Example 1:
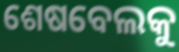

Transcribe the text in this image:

ଶେଷବେଲକୁ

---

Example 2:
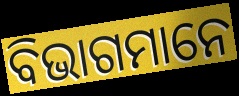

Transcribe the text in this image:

ବିଭାଗମାନେ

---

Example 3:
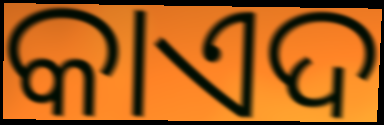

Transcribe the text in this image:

କାଏଦ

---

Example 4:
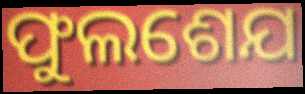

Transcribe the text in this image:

ଫୁଲଶେଯ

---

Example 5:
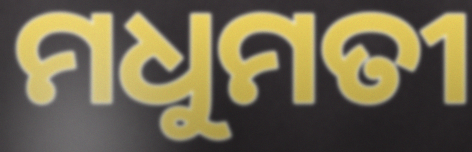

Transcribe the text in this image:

ମଧୁମତୀ